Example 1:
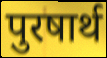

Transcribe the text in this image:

पुरषार्थ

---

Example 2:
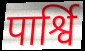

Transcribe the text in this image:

पार्श्वि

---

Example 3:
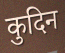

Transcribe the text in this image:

कुदिन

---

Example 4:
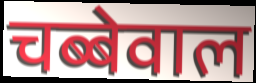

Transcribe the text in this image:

चब्बेवाल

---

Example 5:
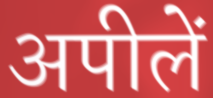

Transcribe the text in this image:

अपीलें